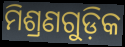
ମିଶ୍ରଣଗୁଡ଼ିକ